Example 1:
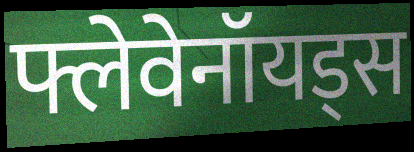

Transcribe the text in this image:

फ्लेवेनॉयड्स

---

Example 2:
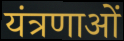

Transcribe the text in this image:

यंत्रणाओं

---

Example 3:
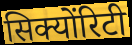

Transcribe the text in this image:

सिक्योंरिटी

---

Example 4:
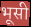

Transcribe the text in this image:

भूसी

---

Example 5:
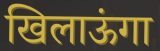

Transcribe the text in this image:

खिलाऊंगा